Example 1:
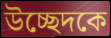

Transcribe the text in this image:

উচ্ছেদকে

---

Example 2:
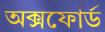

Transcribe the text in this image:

অক্সফোর্ড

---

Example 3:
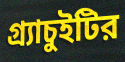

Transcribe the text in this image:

গ্র্যাচুইটির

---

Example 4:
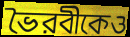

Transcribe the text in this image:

ভৈরবীকেও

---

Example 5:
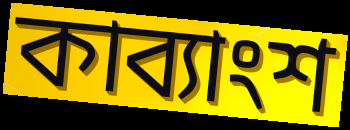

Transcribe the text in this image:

কাব্যাংশ